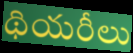
థియరీలు